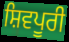
ਸ਼ਿਵਪੂਰੀ